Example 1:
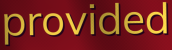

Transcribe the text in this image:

provided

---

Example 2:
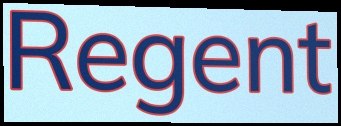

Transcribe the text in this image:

Regent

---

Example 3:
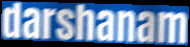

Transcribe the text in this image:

darshanam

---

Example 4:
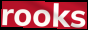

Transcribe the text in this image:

rooks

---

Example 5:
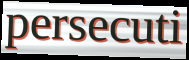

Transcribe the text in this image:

persecuti